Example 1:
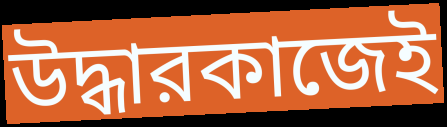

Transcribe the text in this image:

উদ্ধারকাজেই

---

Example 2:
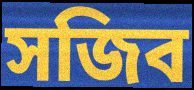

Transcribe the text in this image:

সজিব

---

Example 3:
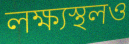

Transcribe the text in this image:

লক্ষ্যস্থলও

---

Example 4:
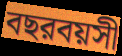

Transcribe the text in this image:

বছরবয়সী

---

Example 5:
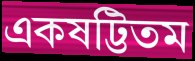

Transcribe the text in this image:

একষট্টিতম